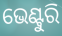
ଭେଣ୍ଟୁରି